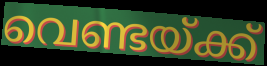
വെണ്ടയ്ക്ക്